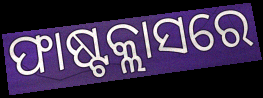
ଫାଷ୍ଟକ୍ଲାସରେ